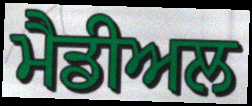
ਮੈਡੀਅਲ